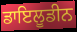
ਡਾਇਲੂਡੀਨ